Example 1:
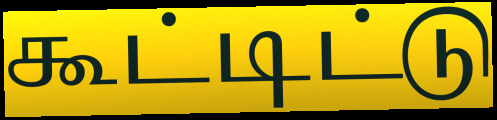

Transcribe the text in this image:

கூட்டிட்டு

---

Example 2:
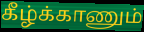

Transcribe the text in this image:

கீழ்க்காணும்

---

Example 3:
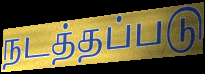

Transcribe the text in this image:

நடத்தப்படு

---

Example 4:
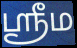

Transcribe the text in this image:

ஶ்ரீம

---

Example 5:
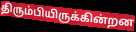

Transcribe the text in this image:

திரும்பியிருக்கின்றன